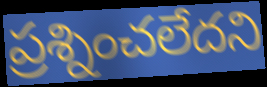
ప్రశ్నించలేదని